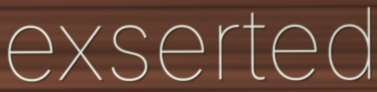
exserted